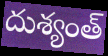
దుశ్యంత్